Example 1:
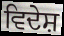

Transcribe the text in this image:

ਵਿਦੇਸ਼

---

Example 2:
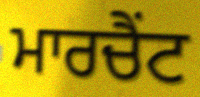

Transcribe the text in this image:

ਮਾਰਚੈਂਟ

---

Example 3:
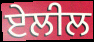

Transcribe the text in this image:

ਏਲੀਲ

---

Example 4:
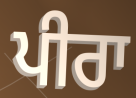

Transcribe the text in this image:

ਪੀਰਾ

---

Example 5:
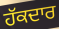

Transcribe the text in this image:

ਹੱਕਦਾਰ